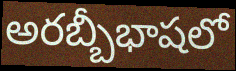
అరబ్బీభాషలో